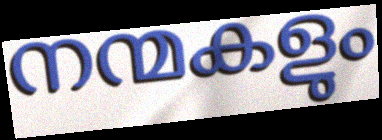
നന്മകളും